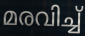
മരവിച്ച്